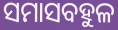
ସମାସବହୁଳ